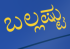
ಬಲ್ಲಷ್ಟು